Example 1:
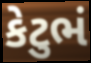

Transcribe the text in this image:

કેટુભં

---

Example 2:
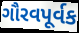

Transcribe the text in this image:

ગૌરવપૂર્વક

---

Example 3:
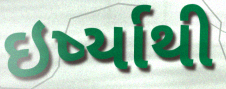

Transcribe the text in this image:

ઇર્ષ્યાથી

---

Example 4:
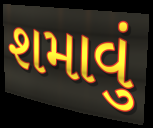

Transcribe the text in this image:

શમાવું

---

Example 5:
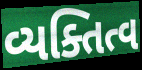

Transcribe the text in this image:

વ્યક્તિત્વ